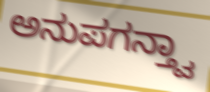
ಅನುಪಗನ್ತ್ವಾ